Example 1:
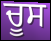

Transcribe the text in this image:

ਚੂਸ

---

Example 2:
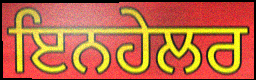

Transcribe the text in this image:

ਇਨਹੇਲਰ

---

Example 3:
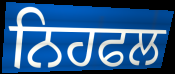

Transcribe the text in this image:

ਨਿਹਫਲ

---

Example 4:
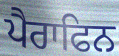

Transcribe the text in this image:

ਪੈਰਾਫਿਨ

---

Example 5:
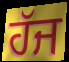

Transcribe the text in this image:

ਹੱਜ